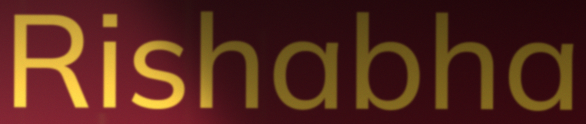
Rishabha